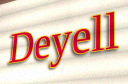
Deyell